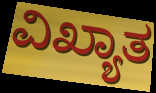
ವಿಖ್ಯಾತ